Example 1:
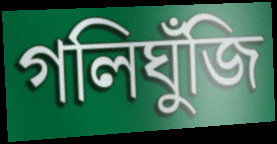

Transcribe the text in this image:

গলিঘুঁজি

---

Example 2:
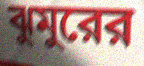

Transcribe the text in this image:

ঝুমুরের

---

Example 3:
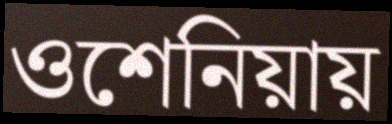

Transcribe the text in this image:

ওশেনিয়ায়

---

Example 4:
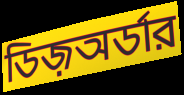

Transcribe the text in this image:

ডিজ়অর্ডার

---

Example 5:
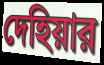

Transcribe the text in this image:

দেহিয়ার